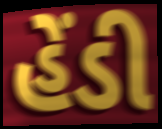
હેંડી